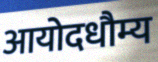
आयोदधौम्य